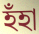
হঁহা